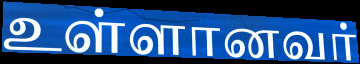
உள்ளானவர்